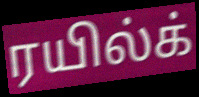
ரயில்க்